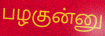
பழகுன்னு